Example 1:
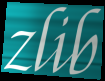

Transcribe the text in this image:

zlib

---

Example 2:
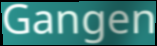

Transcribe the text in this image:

Gangen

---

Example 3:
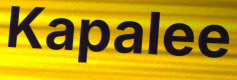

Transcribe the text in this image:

Kapalee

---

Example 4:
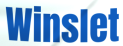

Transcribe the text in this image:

Winslet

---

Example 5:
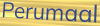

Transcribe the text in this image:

Perumaal